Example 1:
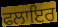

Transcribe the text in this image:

ਫਲਾਇਰ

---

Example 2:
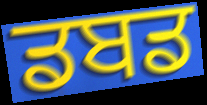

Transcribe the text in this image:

ਡਬਡ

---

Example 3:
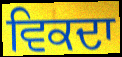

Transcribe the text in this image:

ਵਿਕਦਾ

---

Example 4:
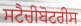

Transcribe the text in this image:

ਸਟੈਚੀਬੋਟਰੀਸ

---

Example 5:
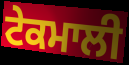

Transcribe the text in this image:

ਟੇਕਮਾਲੀ